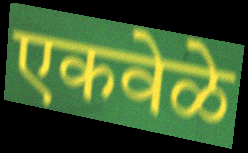
एकवेळे